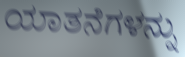
ಯಾತನೆಗಳನ್ನು